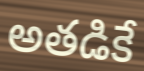
అతడికే